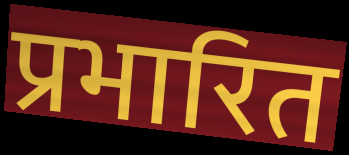
प्रभारित